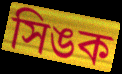
সিঙক